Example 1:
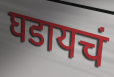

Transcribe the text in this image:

घडायचं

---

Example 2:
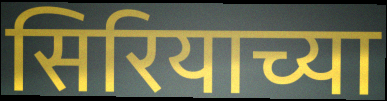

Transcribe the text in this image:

सिरियाच्या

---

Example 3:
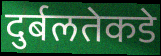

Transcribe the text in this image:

दुर्बलतेकडे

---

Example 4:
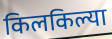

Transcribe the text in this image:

किलकिल्या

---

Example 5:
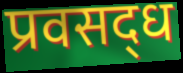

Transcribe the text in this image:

प्रवसद्ध